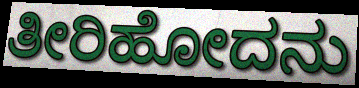
ತೀರಿಹೋದನು